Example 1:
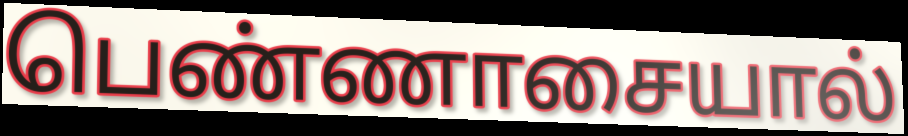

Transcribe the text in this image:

பெண்ணாசையால்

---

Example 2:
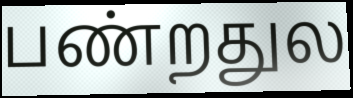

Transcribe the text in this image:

பண்றதுல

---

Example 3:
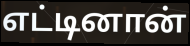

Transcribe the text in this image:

எட்டினான்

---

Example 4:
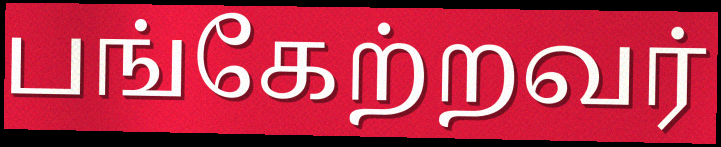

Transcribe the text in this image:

பங்கேற்றவர்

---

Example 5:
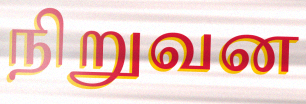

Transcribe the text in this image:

நிறுவன